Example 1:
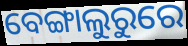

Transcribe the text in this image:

ବେଙ୍ଗାଲୁରୁରେ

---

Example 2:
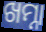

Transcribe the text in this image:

ଖମ୍ନା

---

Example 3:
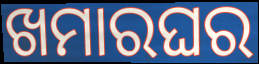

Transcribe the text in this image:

ଖମାରଘର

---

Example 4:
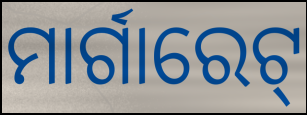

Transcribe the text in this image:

ମାର୍ଗାରେଟ୍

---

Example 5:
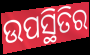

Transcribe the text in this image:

ଉପସ୍ଥିତିର